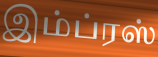
இம்ப்ரஸ்